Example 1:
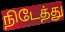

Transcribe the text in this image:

நிடேத்து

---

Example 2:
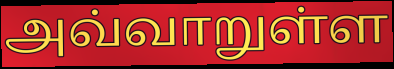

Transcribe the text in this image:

அவ்வாறுள்ள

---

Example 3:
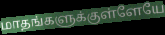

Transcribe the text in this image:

மாதங்களுக்குள்ளேயே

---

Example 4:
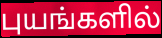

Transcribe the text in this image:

புயங்களில்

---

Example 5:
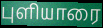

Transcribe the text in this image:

புளியாரை